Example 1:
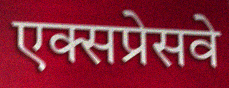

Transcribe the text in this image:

एक्सप्रेसवे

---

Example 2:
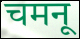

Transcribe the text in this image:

चमनू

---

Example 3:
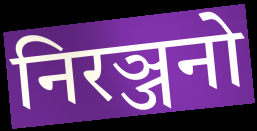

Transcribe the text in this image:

निरञ्जनो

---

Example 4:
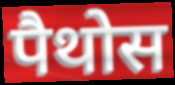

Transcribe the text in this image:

पैथोस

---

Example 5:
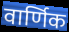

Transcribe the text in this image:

वार्णिक